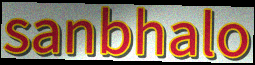
sanbhalo